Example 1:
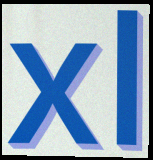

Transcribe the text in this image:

xl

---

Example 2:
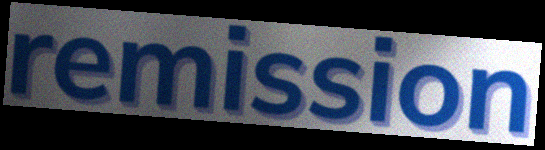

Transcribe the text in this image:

remission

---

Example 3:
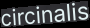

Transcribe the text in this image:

circinalis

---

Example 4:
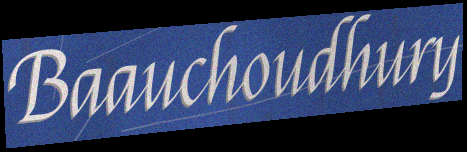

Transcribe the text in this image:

Baauchoudhury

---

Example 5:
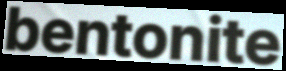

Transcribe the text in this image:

bentonite